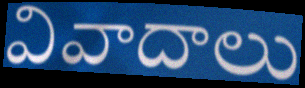
వివాదాలు